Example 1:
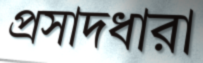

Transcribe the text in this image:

প্রসাদধারা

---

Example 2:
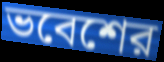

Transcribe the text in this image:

ভবেশের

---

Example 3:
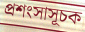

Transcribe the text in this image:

প্রশংসাসূচক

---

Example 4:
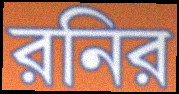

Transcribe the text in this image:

রনির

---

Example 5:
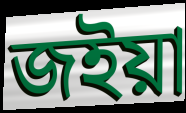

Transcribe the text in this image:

জইয়া